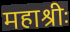
महाश्रीः